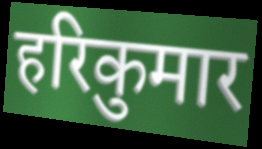
हरिकुमार